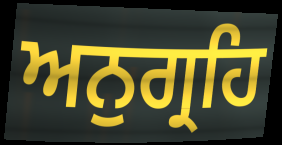
ਅਨੁਗ੍ਰਹਿ